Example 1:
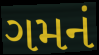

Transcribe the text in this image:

ગમનં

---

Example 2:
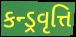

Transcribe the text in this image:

કન્ડ્રવૃત્તિ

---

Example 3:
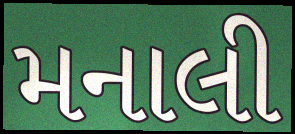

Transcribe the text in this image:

મનાલી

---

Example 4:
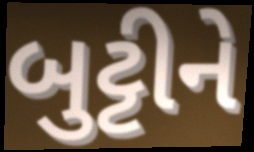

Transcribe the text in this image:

બુટ્ટીને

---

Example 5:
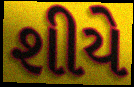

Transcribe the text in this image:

શીયે